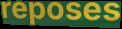
reposes